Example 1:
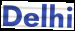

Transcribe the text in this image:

Delhi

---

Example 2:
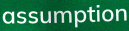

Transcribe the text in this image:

assumption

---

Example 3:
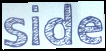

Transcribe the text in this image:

side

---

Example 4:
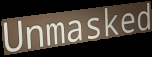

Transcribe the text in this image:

Unmasked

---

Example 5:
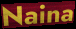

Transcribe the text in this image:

Naina